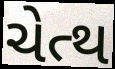
ચેત્થ